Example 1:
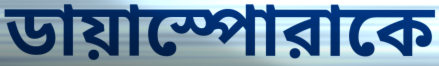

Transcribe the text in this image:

ডায়াস্পোরাকে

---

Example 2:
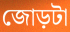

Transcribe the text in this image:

জোড়টা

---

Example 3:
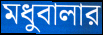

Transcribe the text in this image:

মধুবালার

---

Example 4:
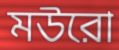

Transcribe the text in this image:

মউরো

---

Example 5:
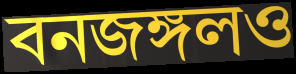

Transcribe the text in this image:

বনজঙ্গলও